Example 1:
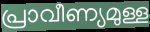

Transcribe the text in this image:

പ്രാവീണ്യമുള്ള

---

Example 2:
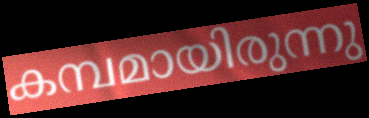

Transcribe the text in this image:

കമ്പമായിരുന്നു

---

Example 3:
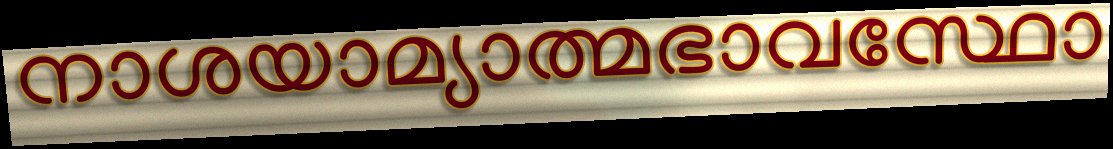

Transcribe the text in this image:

നാശയാമ്യാത്മഭാവസ്ഥോ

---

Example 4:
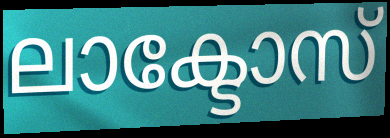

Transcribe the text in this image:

ലാക്ടോസ്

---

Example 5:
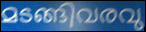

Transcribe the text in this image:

മടങ്ങിവരവു